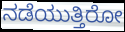
ನಡೆಯುತ್ತಿರೋ